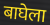
बाघेला